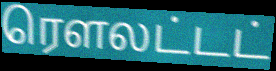
ரௌலட்டட்